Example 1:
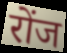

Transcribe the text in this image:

रोंज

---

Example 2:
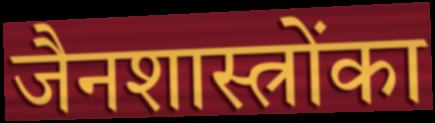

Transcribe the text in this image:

जैनशास्त्रोंका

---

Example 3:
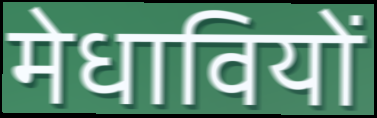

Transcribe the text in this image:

मेधावियों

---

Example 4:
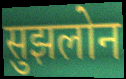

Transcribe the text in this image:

सुझलोन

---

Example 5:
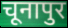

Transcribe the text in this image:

चूनापुर